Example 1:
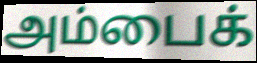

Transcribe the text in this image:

அம்பைக்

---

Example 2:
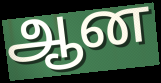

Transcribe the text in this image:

ஆன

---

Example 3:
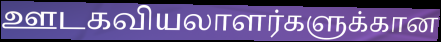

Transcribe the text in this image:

ஊடகவியலாளர்களுக்கான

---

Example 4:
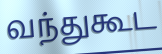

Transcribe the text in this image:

வந்துகூட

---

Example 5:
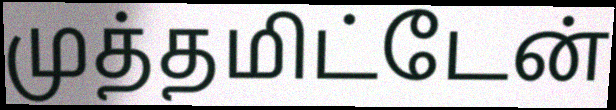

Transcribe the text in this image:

முத்தமிட்டேன்